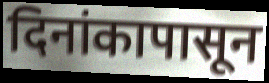
दिनांकापासून